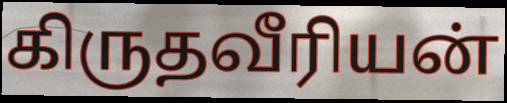
கிருதவீரியன்